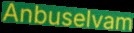
Anbuselvam